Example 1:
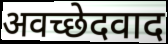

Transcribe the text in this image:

अवच्छेदवाद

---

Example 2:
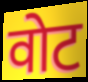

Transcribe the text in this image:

वोट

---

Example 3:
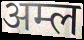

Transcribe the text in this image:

अम्ल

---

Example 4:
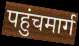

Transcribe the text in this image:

पहुंचमार्ग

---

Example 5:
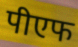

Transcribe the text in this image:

पीएफ